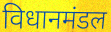
विधानमंडल